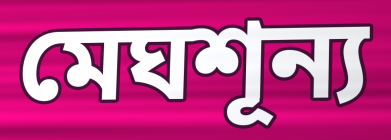
মেঘশূন্য